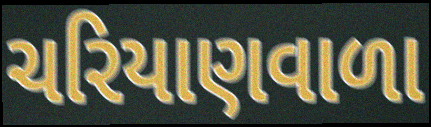
ચરિયાણવાળા